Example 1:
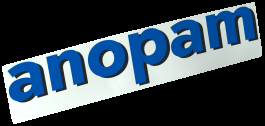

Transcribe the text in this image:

anopam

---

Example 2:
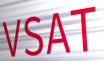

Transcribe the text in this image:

VSAT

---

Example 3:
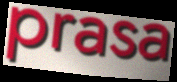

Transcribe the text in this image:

prasa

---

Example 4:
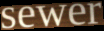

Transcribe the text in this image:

sewer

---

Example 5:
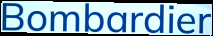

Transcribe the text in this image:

Bombardier